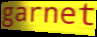
garnet